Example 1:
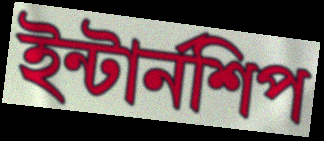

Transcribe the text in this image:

ইন্টার্নশিপ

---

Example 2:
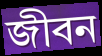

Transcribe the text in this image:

জীবন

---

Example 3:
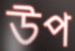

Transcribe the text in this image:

উপ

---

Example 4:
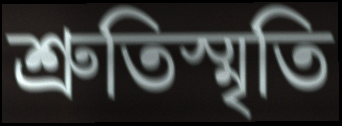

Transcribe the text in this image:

শ্রুতিস্মৃতি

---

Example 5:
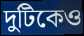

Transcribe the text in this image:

দুটিকেও